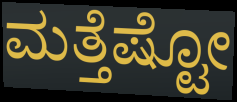
ಮತ್ತೆಷ್ಟೋ